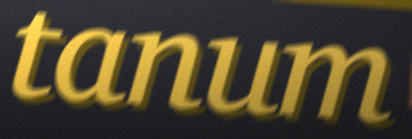
tanum